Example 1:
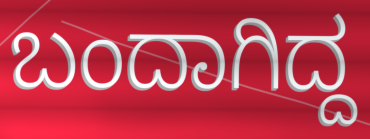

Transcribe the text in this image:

ಬಂದಾಗಿದ್ದ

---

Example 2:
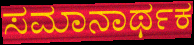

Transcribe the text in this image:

ಸಮಾನಾರ್ಥಕ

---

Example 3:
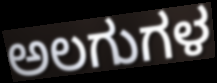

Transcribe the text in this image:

ಅಲಗುಗಳ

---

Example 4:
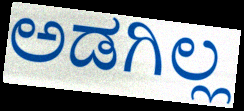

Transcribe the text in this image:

ಅಡಗಿಲ್ಲ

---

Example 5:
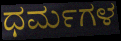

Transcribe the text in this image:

ಧರ್ಮಗಳ